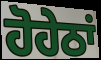
ਹੋਹੇਠਾਂ